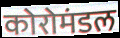
कोरोमंडल